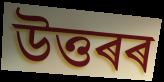
উত্তৰৰ